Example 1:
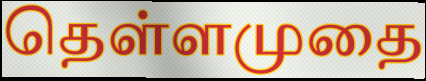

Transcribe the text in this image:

தெள்ளமுதை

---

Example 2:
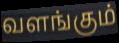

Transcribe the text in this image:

வளங்கும்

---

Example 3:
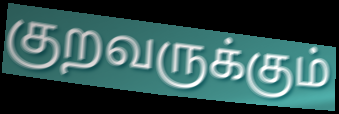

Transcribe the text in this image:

குறவருக்கும்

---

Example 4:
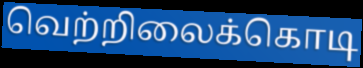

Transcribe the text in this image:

வெற்றிலைக்கொடி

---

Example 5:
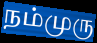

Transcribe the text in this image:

நம்முரு